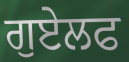
ਗੁਏਲਫ